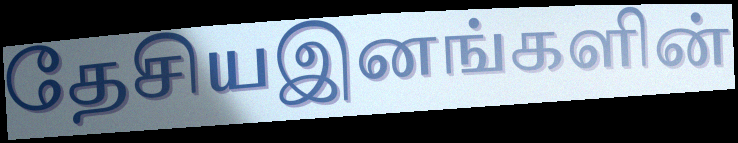
தேசியஇனங்களின்